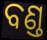
ବଣ୍ଡ